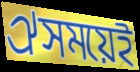
ঐসময়েই